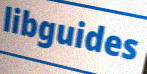
libguides